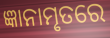
ଜ୍ଞାନାମୃତରେ